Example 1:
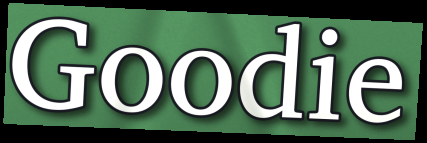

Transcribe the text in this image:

Goodie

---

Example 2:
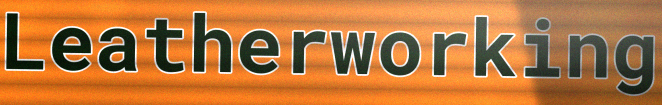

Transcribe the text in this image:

Leatherworking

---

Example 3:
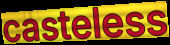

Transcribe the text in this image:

casteless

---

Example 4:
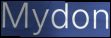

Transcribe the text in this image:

Mydon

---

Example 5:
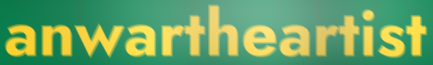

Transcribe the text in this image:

anwartheartist